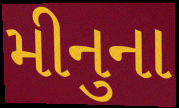
મીનુના